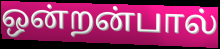
ஒன்றன்பால்